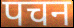
पचन